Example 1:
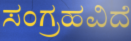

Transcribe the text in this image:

ಸಂಗ್ರಹವಿದೆ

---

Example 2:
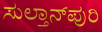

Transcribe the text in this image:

ಸುಲ್ತಾನ್‌ಪುರಿ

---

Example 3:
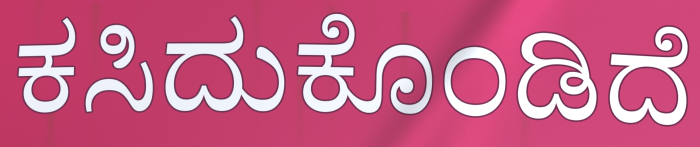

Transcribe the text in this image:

ಕಸಿದುಕೊಂಡಿದೆ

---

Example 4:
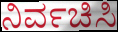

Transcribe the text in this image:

ನಿರ್ವಚಿಸಿ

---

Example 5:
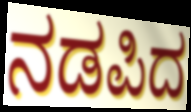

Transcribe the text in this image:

ನಡಪಿದ